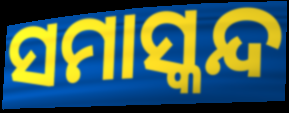
ସମାସ୍କନ୍ଦ